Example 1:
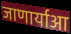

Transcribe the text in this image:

जाणार्याआ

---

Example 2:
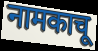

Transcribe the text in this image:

नामकाचू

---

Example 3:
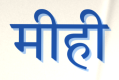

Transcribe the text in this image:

मीही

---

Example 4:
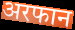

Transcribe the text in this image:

अरफान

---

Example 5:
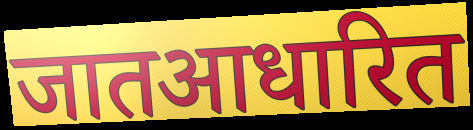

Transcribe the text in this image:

जातआधारित